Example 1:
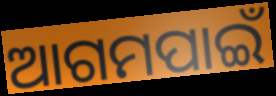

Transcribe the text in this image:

ଆଗମପାଇଁ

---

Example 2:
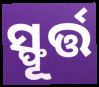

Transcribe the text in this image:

ସ୍ଫୂର୍ତ୍ତ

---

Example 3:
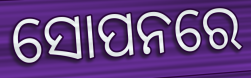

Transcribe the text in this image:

ସୋପନରେ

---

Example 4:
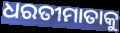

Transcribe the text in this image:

ଧରତୀମାତାକୁ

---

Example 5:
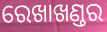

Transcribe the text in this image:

ରେଖାଖଣ୍ଡର